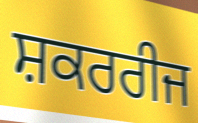
ਸ਼ਕਰਰੀਜ